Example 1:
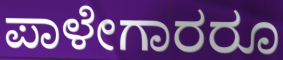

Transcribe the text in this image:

ಪಾಳೇಗಾರರೂ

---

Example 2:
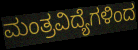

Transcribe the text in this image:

ಮಂತ್ರವಿದ್ಯೆಗಳಿಂದ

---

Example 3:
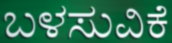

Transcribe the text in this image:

ಬಳಸುವಿಕೆ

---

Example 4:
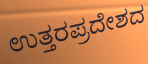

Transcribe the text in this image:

ಉತ್ತರಪ್ರದೇಶದ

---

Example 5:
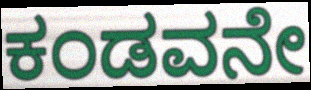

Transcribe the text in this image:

ಕಂಡವನೇ